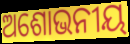
ଅଶୋଭନୀୟ